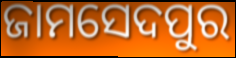
ଜାମସେଦପୁର